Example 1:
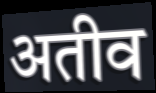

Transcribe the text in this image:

अतीव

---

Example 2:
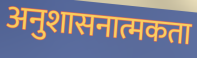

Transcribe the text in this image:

अनुशासनात्मकता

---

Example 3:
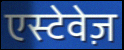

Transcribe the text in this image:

एस्टेवेज़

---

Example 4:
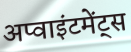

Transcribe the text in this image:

अप्वाइंटमेंट्स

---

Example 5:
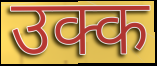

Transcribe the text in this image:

उक्क